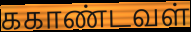
ககாண்டவள்